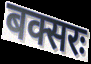
बक्सरः